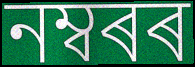
নম্বৰৰ